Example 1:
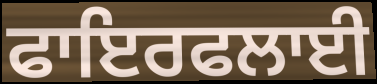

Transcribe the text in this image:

ਫਾਇਰਫਲਾਈ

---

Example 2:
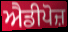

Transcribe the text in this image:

ਐਡੀਪੋਜ਼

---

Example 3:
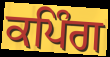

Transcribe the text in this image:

ਕਪਿੰਗ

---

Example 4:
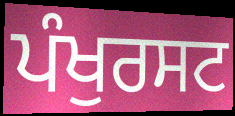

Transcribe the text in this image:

ਪੰਖੁਰਸਟ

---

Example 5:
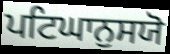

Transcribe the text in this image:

ਪਟਿਘਾਨੁਸਯੋ